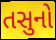
તસુનો